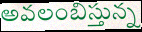
అవలంబిస్తున్న